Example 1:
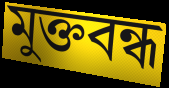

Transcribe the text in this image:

মুক্তবন্ধ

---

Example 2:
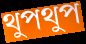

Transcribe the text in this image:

থুপথুপ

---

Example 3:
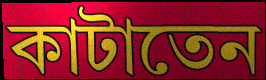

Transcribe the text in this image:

কাটাতেন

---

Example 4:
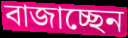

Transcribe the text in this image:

বাজাচ্ছেন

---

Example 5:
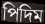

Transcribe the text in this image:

পিদিম